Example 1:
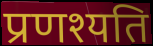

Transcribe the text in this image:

प्रणश्यति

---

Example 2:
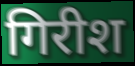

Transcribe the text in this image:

गिरीश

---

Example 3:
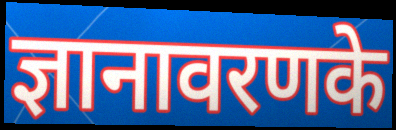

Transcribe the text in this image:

ज्ञानावरणके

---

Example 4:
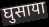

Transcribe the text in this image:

घुसाया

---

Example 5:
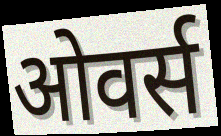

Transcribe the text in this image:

ओवर्स